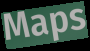
Maps